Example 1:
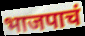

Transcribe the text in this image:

भाजपाचं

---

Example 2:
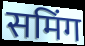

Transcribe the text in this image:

समिंग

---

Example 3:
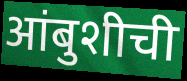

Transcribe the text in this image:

आंबुशीची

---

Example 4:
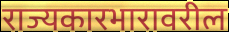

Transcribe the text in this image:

राज्यकारभारावरील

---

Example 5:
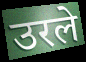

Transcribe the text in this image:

उरले